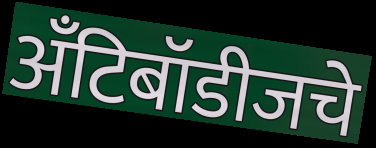
अँटिबॉडीजचे